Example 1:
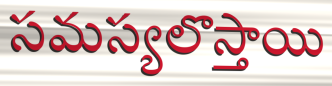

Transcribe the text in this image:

సమస్యలొస్తాయి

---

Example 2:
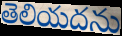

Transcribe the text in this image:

తెలియదను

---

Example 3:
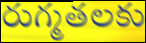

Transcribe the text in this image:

రుగ్మతలకు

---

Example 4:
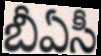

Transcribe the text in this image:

బీఏసీ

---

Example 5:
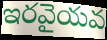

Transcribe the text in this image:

ఇరవైయవ